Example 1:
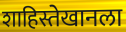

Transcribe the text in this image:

शाहिस्तेखानला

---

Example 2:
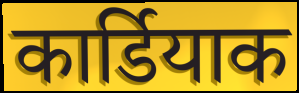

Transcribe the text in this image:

कार्डियाक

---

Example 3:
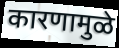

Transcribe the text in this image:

कारणामुळे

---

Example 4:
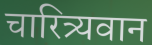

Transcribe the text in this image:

चारित्र्यवान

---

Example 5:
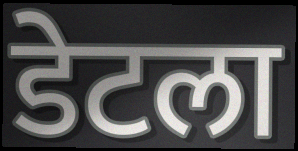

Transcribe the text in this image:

डेटला